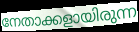
നേതാക്കളായിരുന്ന